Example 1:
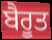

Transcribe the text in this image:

ਬੈਰੂਤ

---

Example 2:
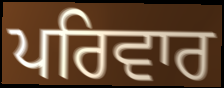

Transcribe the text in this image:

ਪਰਿਵਾਰ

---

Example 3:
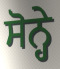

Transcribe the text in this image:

ਸੋਨ੍ਹੇ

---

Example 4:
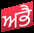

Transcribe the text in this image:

ਅਭੈ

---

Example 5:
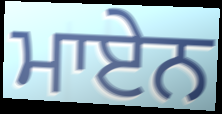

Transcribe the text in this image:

ਮਾਏਨ